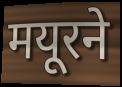
मयूरने